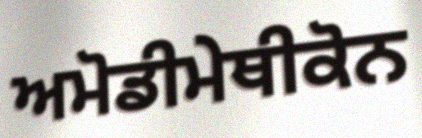
ਅਮੋਡੀਮੇਥੀਕੋਨ